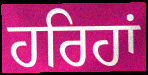
ਹਰਿਹਾਂ